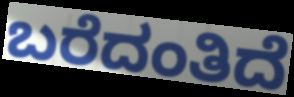
ಬರೆದಂತಿದೆ